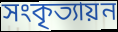
সংকৃত্যায়ন